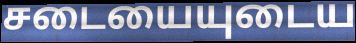
சடையையுடைய